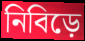
নিবিড়ে